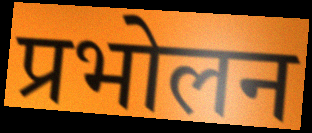
प्रभोलन